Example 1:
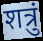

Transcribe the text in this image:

शत्रुं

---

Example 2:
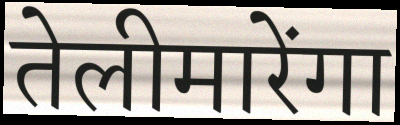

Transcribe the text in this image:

तेलीमारेंगा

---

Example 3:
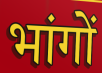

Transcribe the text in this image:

भांगों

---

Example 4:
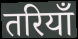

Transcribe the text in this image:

तरियाँ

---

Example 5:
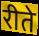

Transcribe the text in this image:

रीते